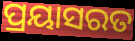
ପ୍ରୟାସରତ